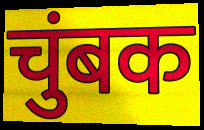
चुंबक